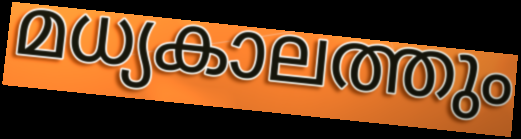
മധ്യകാലത്തും